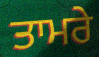
ਤਾਮਰੇ